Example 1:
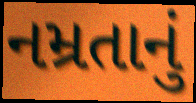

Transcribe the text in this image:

નમ્રતાનું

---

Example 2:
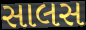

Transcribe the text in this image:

સાલસ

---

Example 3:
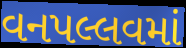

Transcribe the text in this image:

વનપલ્લવમાં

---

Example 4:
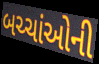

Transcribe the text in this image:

બચ્ચાંઓની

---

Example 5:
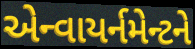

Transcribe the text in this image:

એન્વાયર્નમેન્ટને